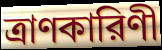
ত্রাণকারিণী